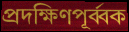
প্রদক্ষিণপূর্ব্বক